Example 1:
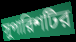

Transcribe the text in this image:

সুপারিশটির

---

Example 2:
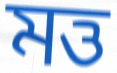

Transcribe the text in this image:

মত্ত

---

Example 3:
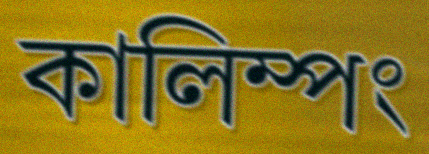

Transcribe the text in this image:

কালিম্পং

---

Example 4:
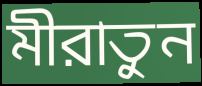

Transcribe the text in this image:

মীরাতুন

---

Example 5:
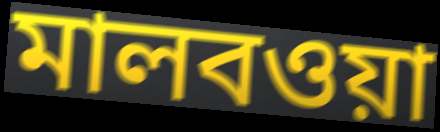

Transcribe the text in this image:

মালবওয়া